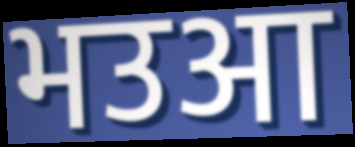
भउआ